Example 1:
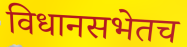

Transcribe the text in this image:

विधानसभेतच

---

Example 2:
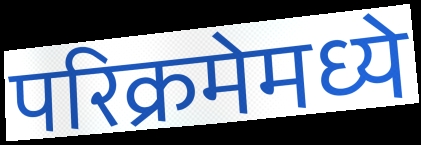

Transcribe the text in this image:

परिक्रमेमध्ये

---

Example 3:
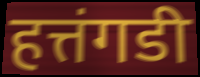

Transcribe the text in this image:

हत्तंगडी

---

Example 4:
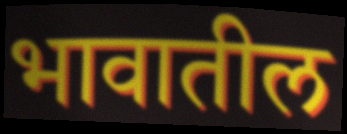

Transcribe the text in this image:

भावातील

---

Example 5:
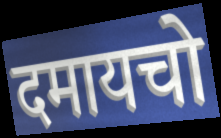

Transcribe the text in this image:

दमायचो